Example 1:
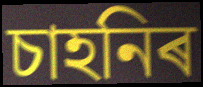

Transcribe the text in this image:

চাহনিৰ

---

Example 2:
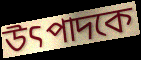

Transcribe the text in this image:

উৎপাদকে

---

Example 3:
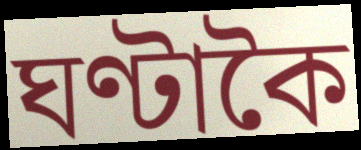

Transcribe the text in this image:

ঘণ্টাকৈ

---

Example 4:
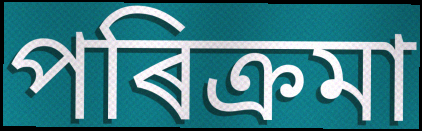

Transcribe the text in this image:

পৰিক্ৰমা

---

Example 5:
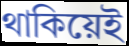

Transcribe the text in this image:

থাকিয়েই